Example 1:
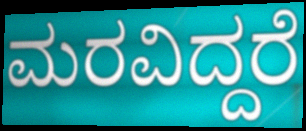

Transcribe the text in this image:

ಮರವಿದ್ದರೆ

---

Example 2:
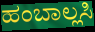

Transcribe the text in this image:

ಹಂಬಾಲ್ಲಸಿ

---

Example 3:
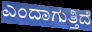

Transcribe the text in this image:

ಎಂದಾಗುತ್ತಿದೆ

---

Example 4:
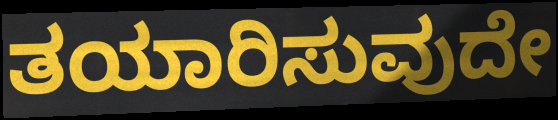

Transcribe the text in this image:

ತಯಾರಿಸುವುದೇ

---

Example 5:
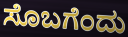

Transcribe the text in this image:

ಸೊಬಗೆಂದು